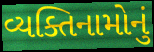
વ્યક્તિનામોનું